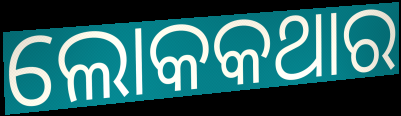
ଲୋକକଥାର